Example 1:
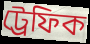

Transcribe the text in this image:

ট্ৰেফিক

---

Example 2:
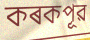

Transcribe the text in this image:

কৰকপূৱ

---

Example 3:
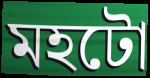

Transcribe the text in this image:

মহটো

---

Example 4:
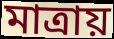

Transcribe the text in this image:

মাত্ৰায়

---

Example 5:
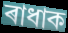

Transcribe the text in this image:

ৰাধাক